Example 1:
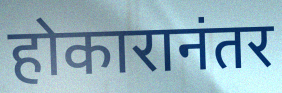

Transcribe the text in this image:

होकारानंतर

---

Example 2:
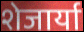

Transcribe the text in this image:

शेजार्या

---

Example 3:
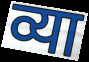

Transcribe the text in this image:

व्‍या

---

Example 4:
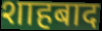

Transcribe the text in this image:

शाहबाद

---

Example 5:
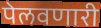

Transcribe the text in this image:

पेलवणारी